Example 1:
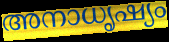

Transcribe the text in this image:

അനാധൃഷ്യം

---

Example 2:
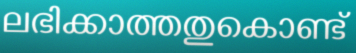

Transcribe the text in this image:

ലഭിക്കാത്തതുകൊണ്ട്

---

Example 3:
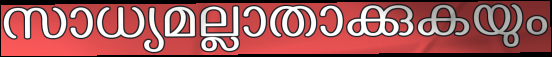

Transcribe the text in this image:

സാധ്യമല്ലാതാക്കുകയും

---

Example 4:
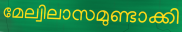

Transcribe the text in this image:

മേല്വിലാസമുണ്ടാക്കി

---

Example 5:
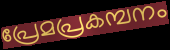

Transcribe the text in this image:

പ്രേമപ്രകമ്പനം